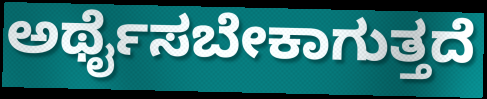
ಅರ್ಥೈಸಬೇಕಾಗುತ್ತದೆ